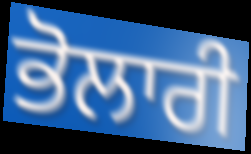
ਭੋਲਾਰੀ